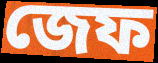
জেফ